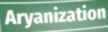
Aryanization